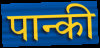
पान्की